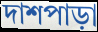
দাশপাড়া